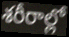
శరీరాల్లో